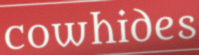
cowhides